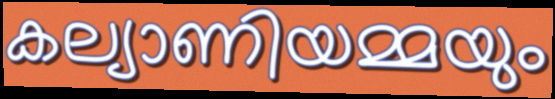
കല്യാണിയമ്മയും